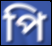
পি